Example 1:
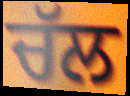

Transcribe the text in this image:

ਚੱਲ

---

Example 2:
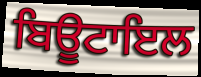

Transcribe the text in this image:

ਬਿਊਟਾਇਲ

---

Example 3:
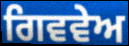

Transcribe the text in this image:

ਗਿਵਵੇਅ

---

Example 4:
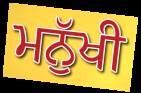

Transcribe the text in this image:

ਮਨੁੱਖੀ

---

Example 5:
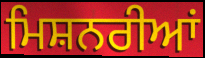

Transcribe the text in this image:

ਮਿਸ਼ਨਰੀਆਂ